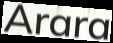
Arara